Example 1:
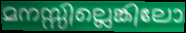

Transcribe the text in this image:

മനസ്സില്ലെങ്കിലോ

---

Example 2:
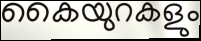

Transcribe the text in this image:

കൈയുറകളും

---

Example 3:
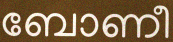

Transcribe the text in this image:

ബോണീ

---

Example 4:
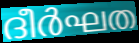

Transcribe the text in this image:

ദീർഘത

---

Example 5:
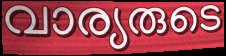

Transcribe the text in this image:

വാര്യരുടെ